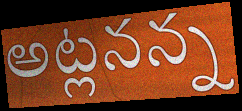
అట్లనన్న